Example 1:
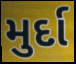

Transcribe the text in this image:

મુર્દા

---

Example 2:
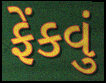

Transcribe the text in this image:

ફેંકવું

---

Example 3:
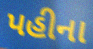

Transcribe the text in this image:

પહીના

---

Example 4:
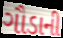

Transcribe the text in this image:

ગૌડાની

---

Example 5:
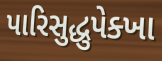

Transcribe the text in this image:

પારિસુદ્ધુપેક્ખા